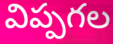
విప్పగల